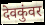
देवकुंवर